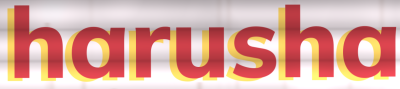
harusha